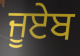
ਜੂਏਬ